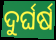
ଦୁର୍ଘର୍ଷ